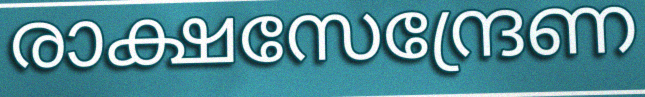
രാക്ഷസേന്ദ്രേണ